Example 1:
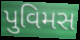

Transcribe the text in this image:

પુવિમસ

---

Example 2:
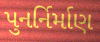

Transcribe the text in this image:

પુનર્નિર્માણ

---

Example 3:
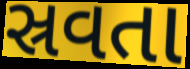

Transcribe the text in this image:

સ્રવતા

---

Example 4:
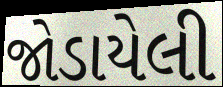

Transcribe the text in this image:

જોડાયેલી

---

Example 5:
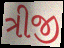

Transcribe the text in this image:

ત્રીજી